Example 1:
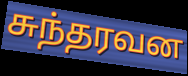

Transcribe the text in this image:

சுந்தரவன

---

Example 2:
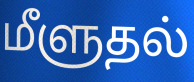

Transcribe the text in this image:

மீளுதல்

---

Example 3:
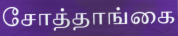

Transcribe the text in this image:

சோத்தாங்கை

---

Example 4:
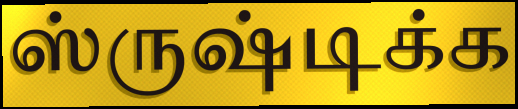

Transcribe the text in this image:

ஸ்ருஷ்டிக்க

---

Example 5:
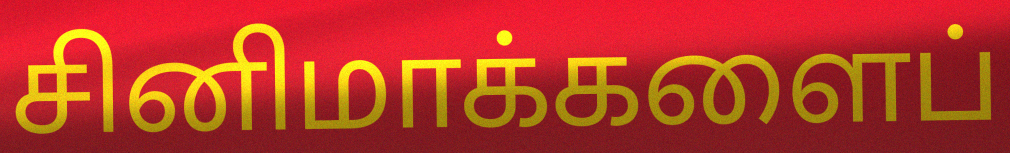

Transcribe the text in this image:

சினிமாக்களைப்